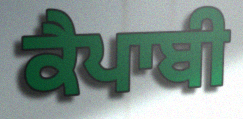
ਕੈਪਾਬੀ